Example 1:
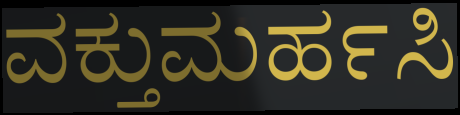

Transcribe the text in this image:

ವಕ್ತುಮರ್ಹಸಿ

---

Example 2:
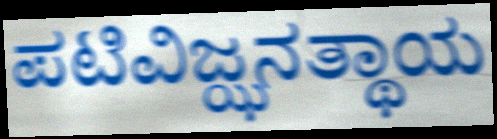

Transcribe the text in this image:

ಪಟಿವಿಜ್ಝನತ್ಥಾಯ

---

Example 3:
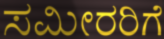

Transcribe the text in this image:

ಸಮೀರರಿಗೆ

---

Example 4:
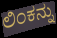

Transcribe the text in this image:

ಲಿಂಕನ್ನು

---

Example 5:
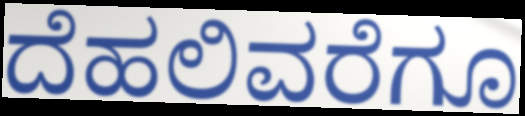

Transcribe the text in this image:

ದೆಹಲಿವರೆಗೂ